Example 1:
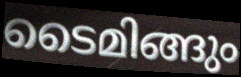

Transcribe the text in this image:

ടൈമിങ്ങും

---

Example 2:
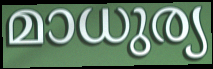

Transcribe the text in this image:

മാധുര്യ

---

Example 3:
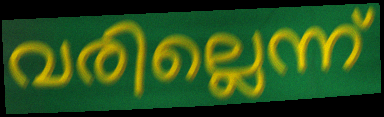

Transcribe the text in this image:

വരില്ലെന്ന്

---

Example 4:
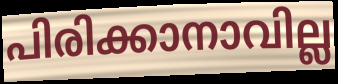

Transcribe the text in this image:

പിരിക്കാനാവില്ല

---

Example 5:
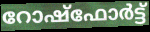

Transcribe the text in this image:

റോഷ്ഫോർട്ട്